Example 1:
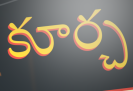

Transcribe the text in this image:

కూర్చ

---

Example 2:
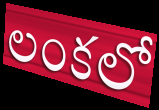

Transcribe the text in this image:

లంకలో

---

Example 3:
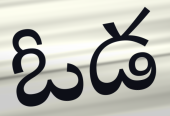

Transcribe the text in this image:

ఓడ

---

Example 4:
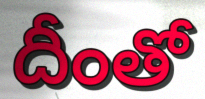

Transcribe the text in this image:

దీంతో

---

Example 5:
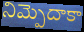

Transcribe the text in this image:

నిమ్పెదాకా